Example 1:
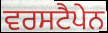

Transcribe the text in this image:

ਵਰਸਟੈਪੇਨ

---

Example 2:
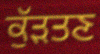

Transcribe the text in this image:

ਕੁੱੜਤਣ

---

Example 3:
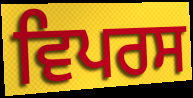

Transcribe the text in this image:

ਵਿਪਰਸ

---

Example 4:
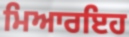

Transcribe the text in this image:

ਮਿਆਰਇਹ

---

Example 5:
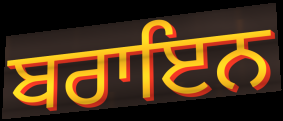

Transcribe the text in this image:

ਬਰਾਇਨ